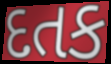
દતક